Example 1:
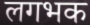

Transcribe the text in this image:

लगभक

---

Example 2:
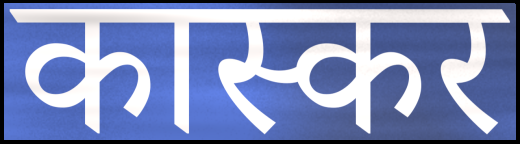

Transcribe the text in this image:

कास्कर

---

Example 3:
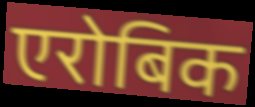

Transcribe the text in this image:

एरोबिक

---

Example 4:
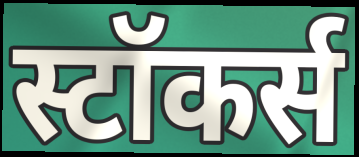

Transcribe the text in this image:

स्टॉकर्स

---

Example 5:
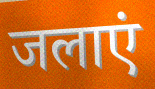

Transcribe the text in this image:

जलाएं